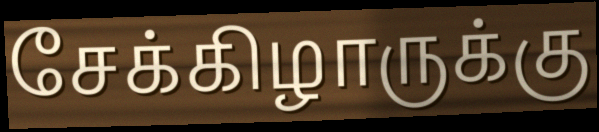
சேக்கிழாருக்கு